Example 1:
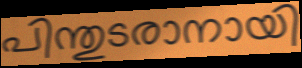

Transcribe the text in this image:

പിന്തുടരാനായി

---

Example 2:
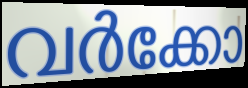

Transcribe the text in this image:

വർക്കോ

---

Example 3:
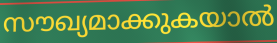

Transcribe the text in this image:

സൗഖ്യമാക്കുകയാൽ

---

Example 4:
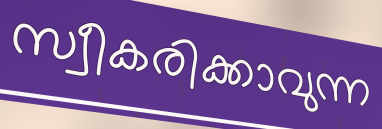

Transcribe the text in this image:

സ്വീകരിക്കാവുന്ന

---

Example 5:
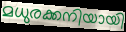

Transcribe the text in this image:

മധുരക്കനിയായി